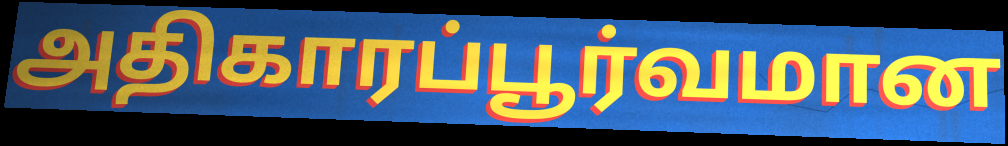
அதிகாரப்பூர்வமான